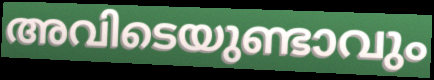
അവിടെയുണ്ടാവും